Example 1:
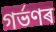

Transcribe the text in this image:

গৰ্ভণৰ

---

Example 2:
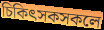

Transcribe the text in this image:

চিকিৎসকসকলে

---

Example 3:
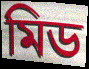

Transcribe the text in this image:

মিড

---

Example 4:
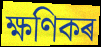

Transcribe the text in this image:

ক্ষণিকৰ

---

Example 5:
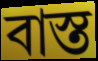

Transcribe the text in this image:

বাস্ত